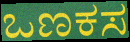
ಒಣಕಸ